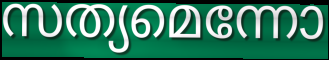
സത്യമെന്നോ